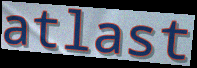
atlast